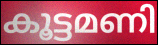
കൂട്ടമണി